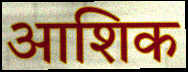
आशिक